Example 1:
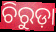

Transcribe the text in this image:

ଚିରୁଡ଼ା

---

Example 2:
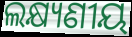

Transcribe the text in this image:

ଲକ୍ଷ୍ୟଣୀୟ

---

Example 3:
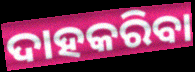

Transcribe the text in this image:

ଦାହକରିବା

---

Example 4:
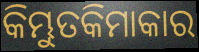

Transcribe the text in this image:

କିମ୍ଭୁତକିମାକାର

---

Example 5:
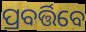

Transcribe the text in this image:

ପ୍ରବର୍ତ୍ତିବେ